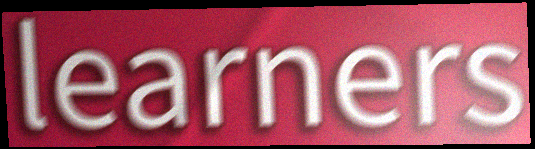
learners